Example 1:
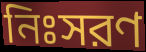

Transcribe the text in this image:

নিঃসরণ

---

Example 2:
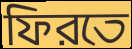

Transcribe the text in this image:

ফিরতে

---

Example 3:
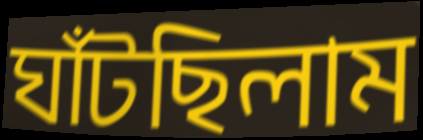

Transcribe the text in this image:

ঘাঁটছিলাম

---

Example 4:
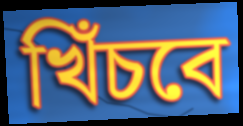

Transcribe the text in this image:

খিঁচবে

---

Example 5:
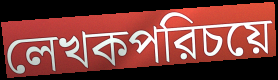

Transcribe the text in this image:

লেখকপরিচয়ে